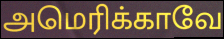
அமெரிக்காவே